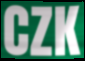
CZK